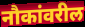
नौकांवरील